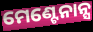
ମେଣ୍ଟେନାନ୍ସ